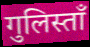
गुलिस्ताँ